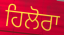
ਹਿਲੋਰਾ